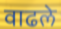
वाढले